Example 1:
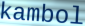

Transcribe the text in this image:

kambol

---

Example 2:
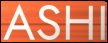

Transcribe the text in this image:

ASHI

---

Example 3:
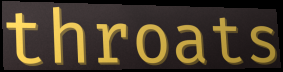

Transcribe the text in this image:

throats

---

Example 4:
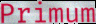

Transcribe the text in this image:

Primum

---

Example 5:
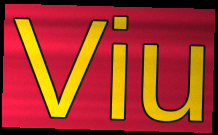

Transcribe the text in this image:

Viu